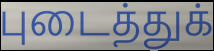
புடைத்துக்